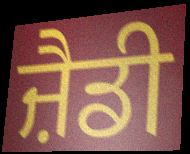
ਜ਼ੈਡੀ